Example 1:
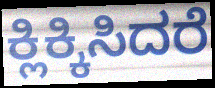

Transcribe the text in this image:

ಕ್ಲಿಕ್ಕಿಸಿದರೆ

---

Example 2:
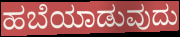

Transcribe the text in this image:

ಹಬೆಯಾಡುವುದು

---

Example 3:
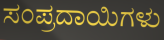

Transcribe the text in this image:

ಸಂಪ್ರದಾಯಿಗಳು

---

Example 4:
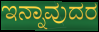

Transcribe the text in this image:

ಇನ್ನಾವುದರ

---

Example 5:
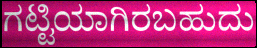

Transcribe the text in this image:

ಗಟ್ಟಿಯಾಗಿರಬಹುದು